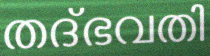
തദ്ഭവതി